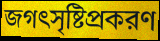
জগৎসৃষ্টিপ্রকরণ